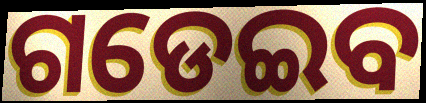
ଗଡେଇବ